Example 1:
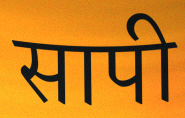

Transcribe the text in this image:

सापी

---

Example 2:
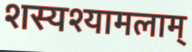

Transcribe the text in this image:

शस्यश्यामलाम्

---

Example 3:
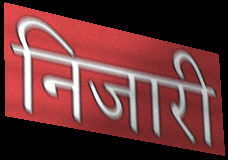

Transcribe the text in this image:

निजारी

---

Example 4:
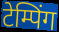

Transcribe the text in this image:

टेम्पिंग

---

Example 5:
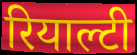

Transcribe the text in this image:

रियाल्टी